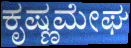
ಕೃಷ್ಣಮೇಘ